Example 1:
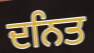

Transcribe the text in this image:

ਦਨਿਤ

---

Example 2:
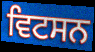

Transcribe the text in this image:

ਵਿਟਸਨ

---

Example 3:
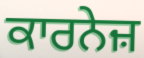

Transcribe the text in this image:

ਕਾਰਨੇਜ਼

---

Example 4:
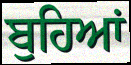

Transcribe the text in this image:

ਬੁਹਿਆਂ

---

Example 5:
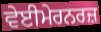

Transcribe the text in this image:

ਵੇਈਮੇਰਨਰਜ਼